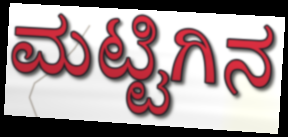
ಮಟ್ಟಿಗಿನ